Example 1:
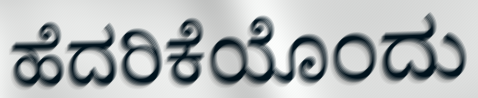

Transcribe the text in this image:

ಹೆದರಿಕೆಯೊಂದು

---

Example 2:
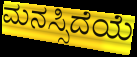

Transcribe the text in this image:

ಮನಸ್ಸಿದೆಯೆ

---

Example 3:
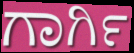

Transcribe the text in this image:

ಗಾರ್ಗಿ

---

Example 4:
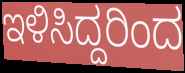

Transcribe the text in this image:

ಇಳಿಸಿದ್ದರಿಂದ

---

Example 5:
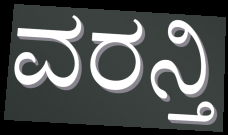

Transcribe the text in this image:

ವರನ್ತಿ